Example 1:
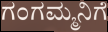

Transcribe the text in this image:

ಗಂಗಮ್ಮನಿಗೆ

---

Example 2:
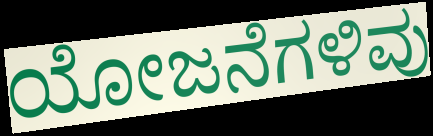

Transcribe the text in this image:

ಯೋಜನೆಗಳಿವು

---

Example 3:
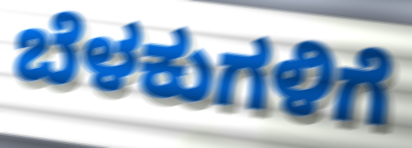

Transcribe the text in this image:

ಬೆಳಕುಗಳಿಗೆ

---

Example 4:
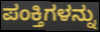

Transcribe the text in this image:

ಪಂಕ್ತಿಗಳನ್ನು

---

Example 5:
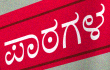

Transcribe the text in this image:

ಪಾಠಗಳ